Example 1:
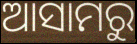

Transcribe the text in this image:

ଆସାମରୁ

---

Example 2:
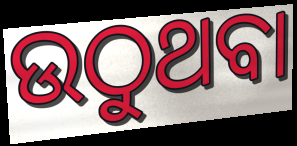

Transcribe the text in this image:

ଉଠୁଥବା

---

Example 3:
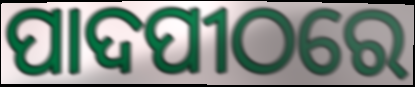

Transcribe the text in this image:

ପାଦପୀଠରେ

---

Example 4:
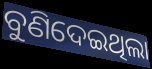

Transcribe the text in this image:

ବୁଣିଦେଇଥିଲା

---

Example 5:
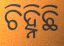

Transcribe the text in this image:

ଚିହ୍ନିଛି